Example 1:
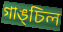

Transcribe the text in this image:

গাঙ্‌চিল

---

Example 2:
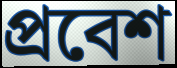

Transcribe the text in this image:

প্রবেশ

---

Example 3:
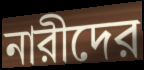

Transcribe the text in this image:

নারীদের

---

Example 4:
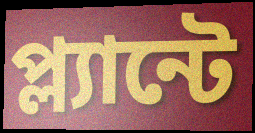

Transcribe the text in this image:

প্ল্যান্টে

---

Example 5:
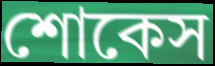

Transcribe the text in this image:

শোকেস